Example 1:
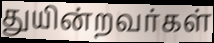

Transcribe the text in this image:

துயின்றவர்கள்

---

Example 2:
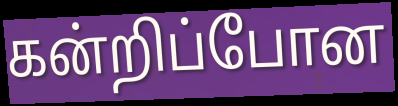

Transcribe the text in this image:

கன்றிப்போன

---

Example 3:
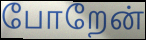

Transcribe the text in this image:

போறேன்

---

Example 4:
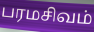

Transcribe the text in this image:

பரமசிவம்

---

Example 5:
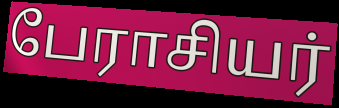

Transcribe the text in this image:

பேராசியர்